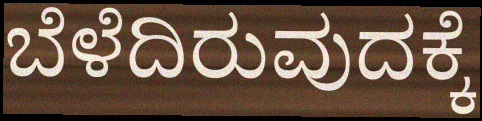
ಬೆಳೆದಿರುವುದಕ್ಕೆ